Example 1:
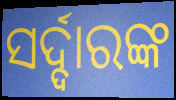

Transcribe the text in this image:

ସର୍ଦ୍ଦାରଙ୍କ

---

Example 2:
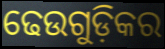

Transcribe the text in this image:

ଢେଉଗୁଡ଼ିକର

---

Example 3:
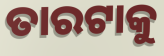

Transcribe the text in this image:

ତାରଟାକୁ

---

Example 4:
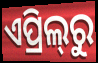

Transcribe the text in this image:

ଏପ୍ରିଲ୍‍ରୁ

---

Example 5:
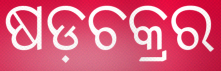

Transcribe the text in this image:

ଷଡ଼ଚକ୍ରର